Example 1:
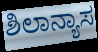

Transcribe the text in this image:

ಶಿಲಾನ್ಯಾಸ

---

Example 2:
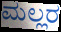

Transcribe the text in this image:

ಮಲ್ಲರ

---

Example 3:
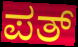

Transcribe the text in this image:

ಪತ್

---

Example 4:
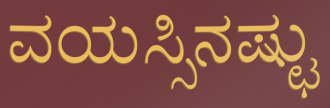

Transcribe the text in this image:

ವಯಸ್ಸಿನಷ್ಟು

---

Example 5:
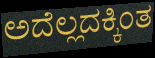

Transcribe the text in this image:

ಅದೆಲ್ಲದಕ್ಕಿಂತ